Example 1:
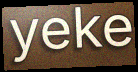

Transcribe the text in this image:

yeke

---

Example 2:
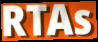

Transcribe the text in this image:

RTAs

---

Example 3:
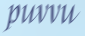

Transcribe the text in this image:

puvvu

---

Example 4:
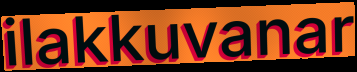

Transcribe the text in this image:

ilakkuvanar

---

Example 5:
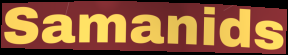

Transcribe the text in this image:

Samanids